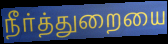
நீர்த்துறையை